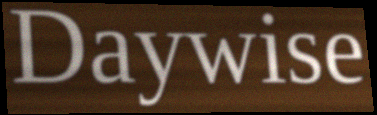
Daywise